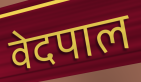
वेदपाल